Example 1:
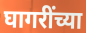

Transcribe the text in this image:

घागरींच्या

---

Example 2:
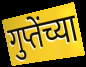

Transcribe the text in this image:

गुप्तेंच्या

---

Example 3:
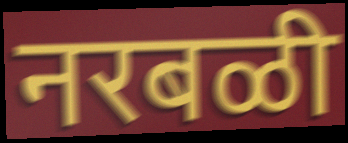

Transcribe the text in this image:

नरबळी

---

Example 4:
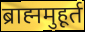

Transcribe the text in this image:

ब्राह्ममुहूर्त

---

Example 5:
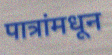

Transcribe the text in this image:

पात्रांमधून